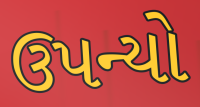
ઉપન્યો